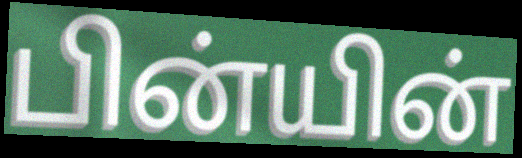
பின்யின்